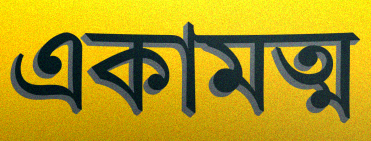
একামত্ম